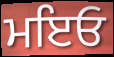
ਮਇਓ